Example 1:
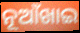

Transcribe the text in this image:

ନୂଆଁଖାଇ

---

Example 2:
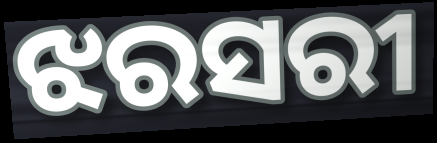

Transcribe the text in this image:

ଝରସରୀ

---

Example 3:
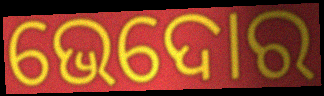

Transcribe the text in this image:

ଭେଦୋର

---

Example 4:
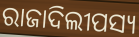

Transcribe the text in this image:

ରାଜାଦିଲୀପସ୍ୟ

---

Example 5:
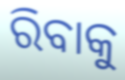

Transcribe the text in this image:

ରିବାକୁ